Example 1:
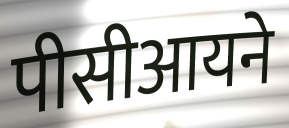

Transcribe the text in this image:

पीसीआयने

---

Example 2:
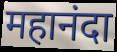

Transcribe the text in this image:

महानंदा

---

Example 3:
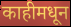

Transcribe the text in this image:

काहीमधून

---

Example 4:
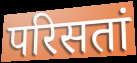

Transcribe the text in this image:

परिसतां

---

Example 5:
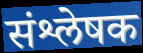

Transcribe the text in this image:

संश्लेषक